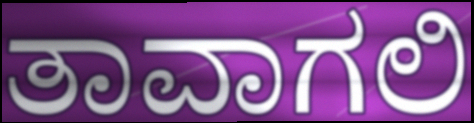
ತಾವಾಗಲಿ